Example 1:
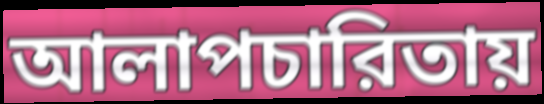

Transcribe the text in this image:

আলাপচারিতায়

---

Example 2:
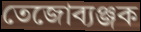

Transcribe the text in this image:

তেজোব্যঞ্জক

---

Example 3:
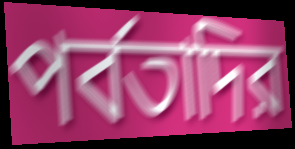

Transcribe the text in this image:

পর্বতাদির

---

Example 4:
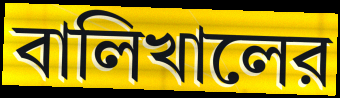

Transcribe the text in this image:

বালিখালের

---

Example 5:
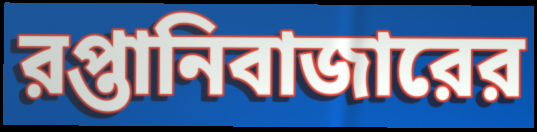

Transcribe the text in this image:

রপ্তানিবাজারের